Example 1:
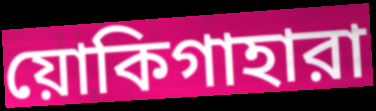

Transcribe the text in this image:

য়োকিগাহারা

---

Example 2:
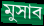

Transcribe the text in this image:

মুসাব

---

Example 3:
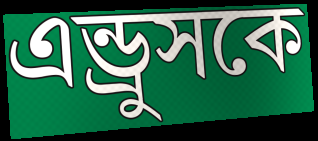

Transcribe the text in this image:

এন্ড্রুসকে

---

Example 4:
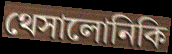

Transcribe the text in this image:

থেসালোনিকি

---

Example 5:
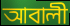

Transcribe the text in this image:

আবালী